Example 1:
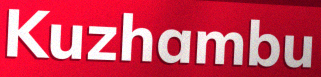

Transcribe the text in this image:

Kuzhambu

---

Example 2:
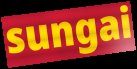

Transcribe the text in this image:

sungai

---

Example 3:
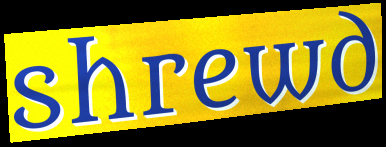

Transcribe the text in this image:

shrewd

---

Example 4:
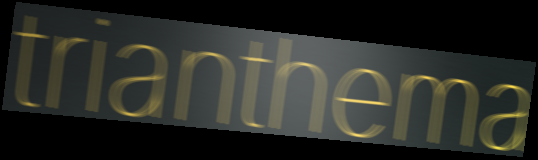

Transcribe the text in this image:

trianthema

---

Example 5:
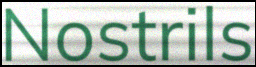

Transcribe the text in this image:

Nostrils